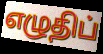
எழுதிப்